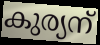
കുര്യന്